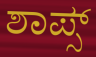
ಶಾಪ್ಸ್